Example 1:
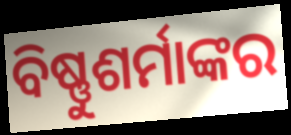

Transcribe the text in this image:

ବିଷ୍ଣୁଶର୍ମାଙ୍କର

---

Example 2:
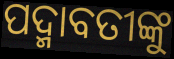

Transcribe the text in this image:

ପଦ୍ମାବତୀଙ୍କୁ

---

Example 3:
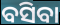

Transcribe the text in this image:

ବସିବା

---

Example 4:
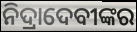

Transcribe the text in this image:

ନିଦ୍ରାଦେବୀଙ୍କର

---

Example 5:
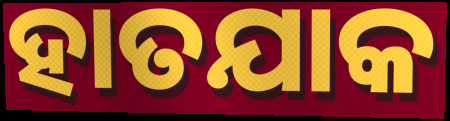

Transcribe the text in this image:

ହାତଯାକ